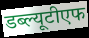
डब्ल्यूटीएफ